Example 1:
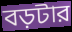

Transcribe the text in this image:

বড়টার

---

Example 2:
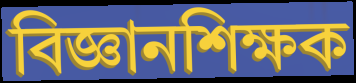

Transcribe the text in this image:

বিজ্ঞানশিক্ষক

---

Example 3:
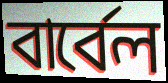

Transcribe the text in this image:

বার্বেল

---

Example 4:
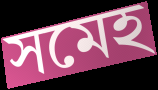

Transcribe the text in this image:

সমেহ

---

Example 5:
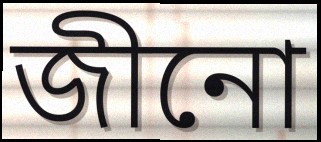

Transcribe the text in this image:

জীনো